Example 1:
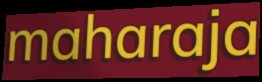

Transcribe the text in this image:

maharaja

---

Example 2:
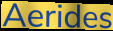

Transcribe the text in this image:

Aerides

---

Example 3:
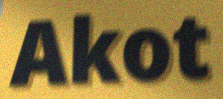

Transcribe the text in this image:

Akot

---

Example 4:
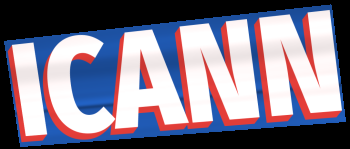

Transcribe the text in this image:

ICANN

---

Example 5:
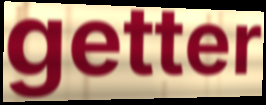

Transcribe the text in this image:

getter